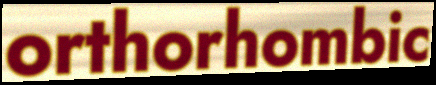
orthorhombic